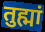
तुह्मां